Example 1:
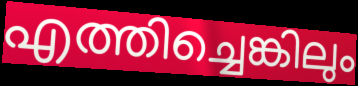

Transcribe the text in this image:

എത്തിച്ചെങ്കിലും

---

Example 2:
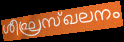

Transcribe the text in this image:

ശീഘ്രസ്ഖലനം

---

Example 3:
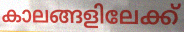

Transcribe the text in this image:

കാലങ്ങളിലേക്ക്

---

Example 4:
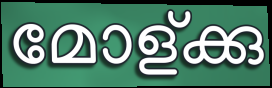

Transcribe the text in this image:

മോള്ക്കു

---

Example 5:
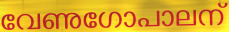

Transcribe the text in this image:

വേണുഗോപാലന്